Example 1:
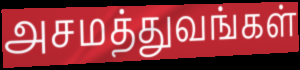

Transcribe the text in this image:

அசமத்துவங்கள்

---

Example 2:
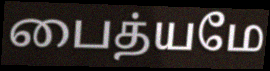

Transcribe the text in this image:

பைத்யமே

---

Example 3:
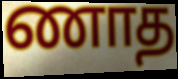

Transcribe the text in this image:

ணாத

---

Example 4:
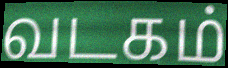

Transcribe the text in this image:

வடகம்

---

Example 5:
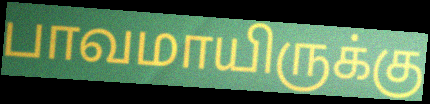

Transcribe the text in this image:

பாவமாயிருக்கு